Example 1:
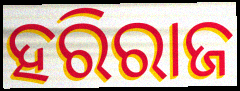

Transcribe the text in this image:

ହରିରାଜ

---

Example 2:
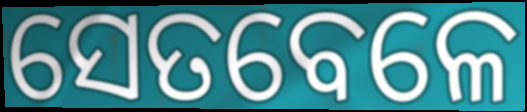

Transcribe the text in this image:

ସେତବେଳେ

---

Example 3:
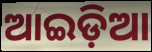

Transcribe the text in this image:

ଆଇଡ଼ିଆ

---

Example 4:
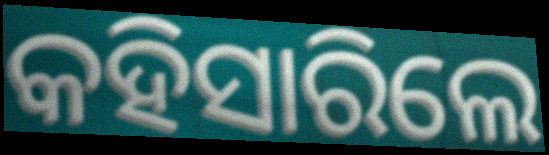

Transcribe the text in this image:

କହିସାରିଲେ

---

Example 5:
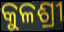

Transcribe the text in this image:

କୁଳଶ୍ରୀ